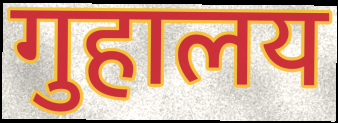
गुहालय